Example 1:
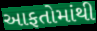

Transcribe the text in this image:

આફતોમાંથી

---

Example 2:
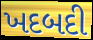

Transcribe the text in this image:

ખદબદી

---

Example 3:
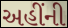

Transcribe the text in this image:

અહીંની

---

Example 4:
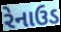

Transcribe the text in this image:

રેનાઉડ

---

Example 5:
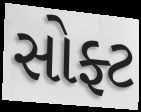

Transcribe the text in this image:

સોફ્ટ